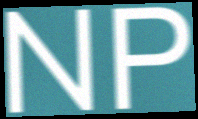
NP